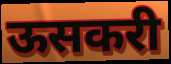
ऊसकरी